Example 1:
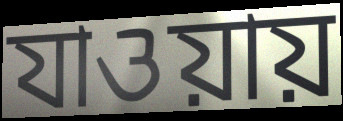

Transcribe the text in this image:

যাওয়ায়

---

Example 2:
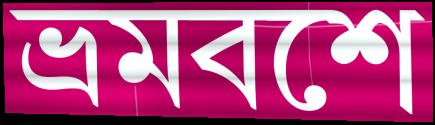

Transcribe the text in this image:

ভ্রমবশে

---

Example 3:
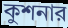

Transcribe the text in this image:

কুশনার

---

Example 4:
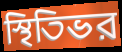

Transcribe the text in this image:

স্থিতিভর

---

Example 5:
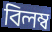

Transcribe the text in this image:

বিলম্ব